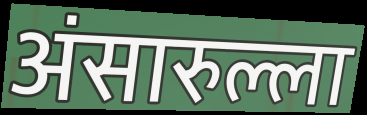
अंसारुल्ला